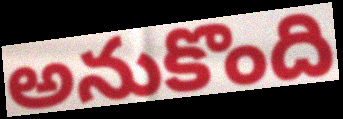
అనుకొంది